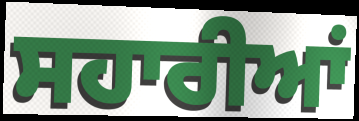
ਸਹਾਰੀਆਂ